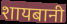
शायबानी